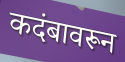
कदंबावरून